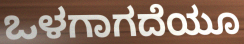
ಒಳಗಾಗದೆಯೂ